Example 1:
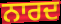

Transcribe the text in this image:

ਨਾਰਦ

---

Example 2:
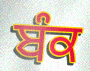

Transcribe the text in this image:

ਬੰਕ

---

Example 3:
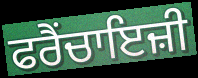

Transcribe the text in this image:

ਫਰੈਂਚਾਇਜ਼ੀ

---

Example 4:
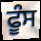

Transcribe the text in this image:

ਫੂੰਸ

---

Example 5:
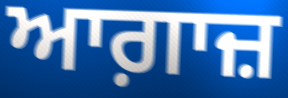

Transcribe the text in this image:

ਆਗ਼ਾਜ਼